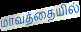
மாவத்தையில்